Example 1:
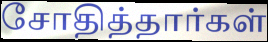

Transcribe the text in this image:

சோதித்தார்கள்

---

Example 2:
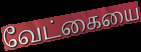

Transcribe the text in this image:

வேட்கையை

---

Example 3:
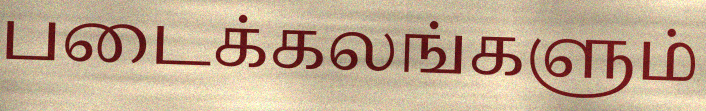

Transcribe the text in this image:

படைக்கலங்களும்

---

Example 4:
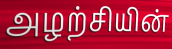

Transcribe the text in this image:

அழற்சியின்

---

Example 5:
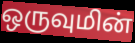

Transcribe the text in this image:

ஒருவுமின்